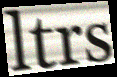
ltrs